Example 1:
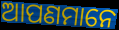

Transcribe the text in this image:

ଆପଣମାନେ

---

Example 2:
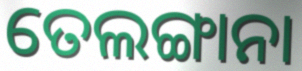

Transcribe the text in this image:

ତେଲଙ୍ଗାନା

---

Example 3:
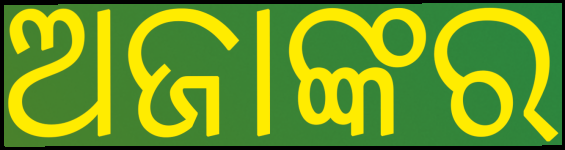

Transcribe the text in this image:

ଅଜାଙ୍କର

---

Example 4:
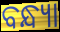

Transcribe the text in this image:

ବନ୍ଧ୍ୟା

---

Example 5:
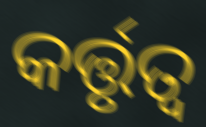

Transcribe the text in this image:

କର୍ତ୍ତୃତ୍ଵ